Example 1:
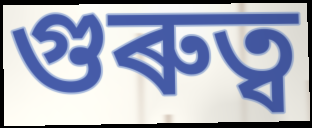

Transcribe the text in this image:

গুৰুত্ব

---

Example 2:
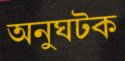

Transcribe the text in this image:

অনুঘটক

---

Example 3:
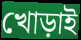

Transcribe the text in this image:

খোড়াই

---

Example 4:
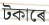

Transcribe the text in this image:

টকাৰে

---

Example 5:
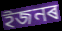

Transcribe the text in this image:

ইজনৰ